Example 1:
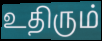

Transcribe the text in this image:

உதிரும்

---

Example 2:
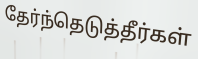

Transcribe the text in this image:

தேர்ந்தெடுத்தீர்கள்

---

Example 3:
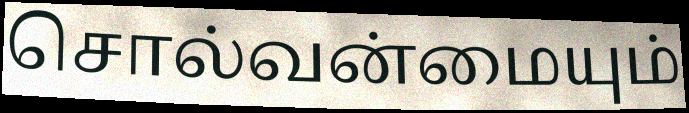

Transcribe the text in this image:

சொல்வன்மையும்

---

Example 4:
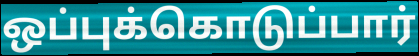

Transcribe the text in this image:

ஒப்புக்கொடுப்பார்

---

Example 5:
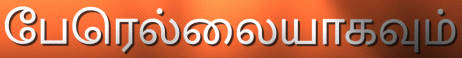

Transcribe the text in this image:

பேரெல்லையாகவும்